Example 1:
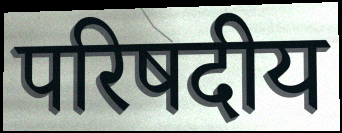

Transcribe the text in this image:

परिषदीय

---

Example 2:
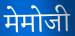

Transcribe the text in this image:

मेमोजी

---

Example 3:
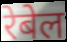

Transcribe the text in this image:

रेबेल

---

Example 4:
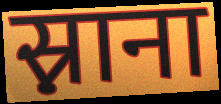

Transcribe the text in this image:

स्नाना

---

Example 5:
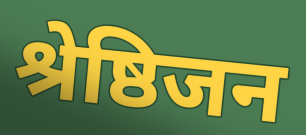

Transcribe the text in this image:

श्रेष्ठिजन